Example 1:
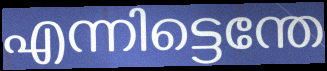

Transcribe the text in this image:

എന്നിട്ടെന്തേ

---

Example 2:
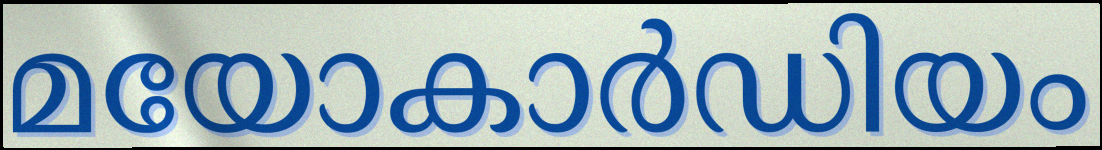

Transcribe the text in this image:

മയോകാർഡിയം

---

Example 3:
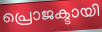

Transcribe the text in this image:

പ്രൊജക്ടായി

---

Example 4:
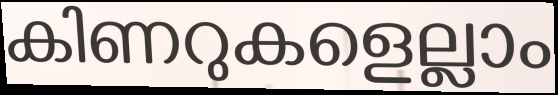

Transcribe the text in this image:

കിണറുകളെല്ലാം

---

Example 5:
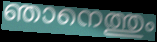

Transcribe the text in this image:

ഞാനെത്തും